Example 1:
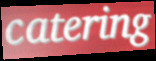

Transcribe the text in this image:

catering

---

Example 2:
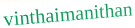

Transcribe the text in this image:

vinthaimanithan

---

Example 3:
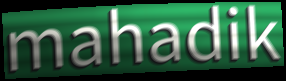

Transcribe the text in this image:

mahadik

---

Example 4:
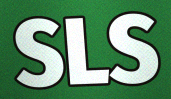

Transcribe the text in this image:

SLS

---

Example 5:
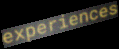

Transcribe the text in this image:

experiences